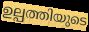
ഉല്പത്തിയുടെ